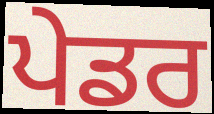
ਪੇਡਰ